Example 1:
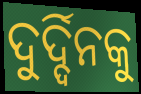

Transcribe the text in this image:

ଦୁର୍ଦ୍ଦିନକୁ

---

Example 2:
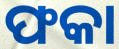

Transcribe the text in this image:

ଫକା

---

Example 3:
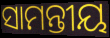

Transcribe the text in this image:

ସାମନ୍ତୀୟ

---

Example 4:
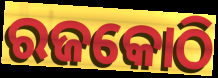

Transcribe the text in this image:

ରଜକୋଠି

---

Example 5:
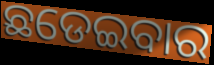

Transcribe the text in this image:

ଛଡେଇବାର